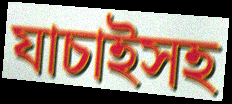
যাচাইসহ